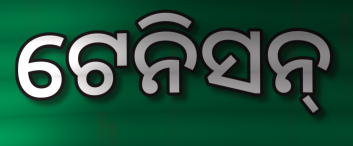
ଟେନିସନ୍